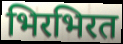
भिरभिरत